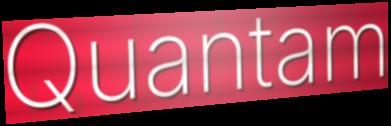
Quantam